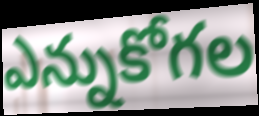
ఎన్నుకోగల